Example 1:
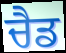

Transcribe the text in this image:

ਚੈਡ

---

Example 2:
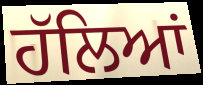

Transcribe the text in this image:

ਹੱਲਿਆਂ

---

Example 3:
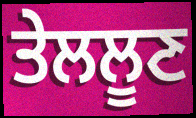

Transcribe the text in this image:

ਤੇਲਲੂਣ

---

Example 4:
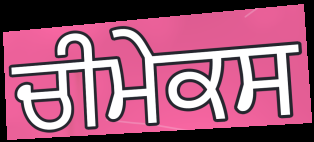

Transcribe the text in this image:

ਚੀਮੇਕਸ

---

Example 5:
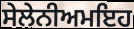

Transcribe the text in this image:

ਸੇਲੇਨੀਅਮਇਹ